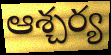
ఆశ్చర్య